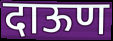
दाऊण